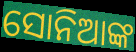
ସୋନିଆଙ୍କ